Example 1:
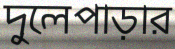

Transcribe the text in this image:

দুলেপাড়ার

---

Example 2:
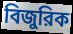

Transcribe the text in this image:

বিজুরিক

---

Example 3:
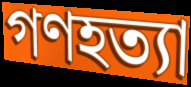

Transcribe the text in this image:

গণহত্যা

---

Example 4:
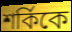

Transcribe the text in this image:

শর্কিকে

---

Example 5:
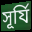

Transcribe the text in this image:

সূর্যি